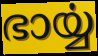
ഭാൎയ്യ